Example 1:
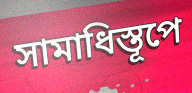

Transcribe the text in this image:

সামাধিস্তূপে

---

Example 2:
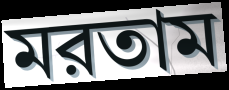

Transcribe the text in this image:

মরতাম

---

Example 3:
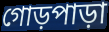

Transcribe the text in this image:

গোড়পাড়া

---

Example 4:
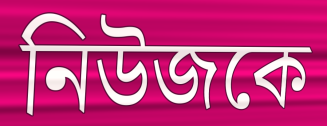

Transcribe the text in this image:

নিউজকে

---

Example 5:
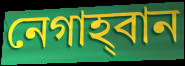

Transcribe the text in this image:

নেগাহ্‌বান